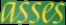
asses